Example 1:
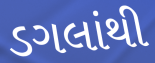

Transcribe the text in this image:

ડગલાંથી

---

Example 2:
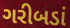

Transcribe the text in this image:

ગરીબડાં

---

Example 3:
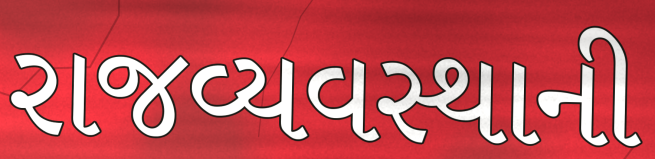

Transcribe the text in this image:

રાજવ્યવસ્થાની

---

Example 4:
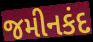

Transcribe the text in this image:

જમીનકંદ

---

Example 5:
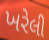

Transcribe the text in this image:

ખરેલી